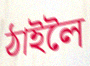
ঠাইলৈ